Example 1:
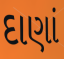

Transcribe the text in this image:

દાણાં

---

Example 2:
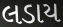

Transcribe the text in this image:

લડાય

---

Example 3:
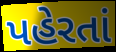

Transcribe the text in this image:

પહેરતાં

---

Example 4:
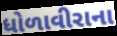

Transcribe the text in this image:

ધોળાવીરાના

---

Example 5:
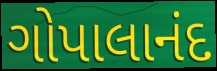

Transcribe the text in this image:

ગોપાલાનંદ